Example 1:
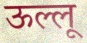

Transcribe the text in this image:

ऊल्लू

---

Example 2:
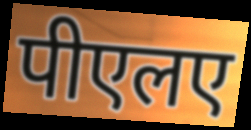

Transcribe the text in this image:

पीएलए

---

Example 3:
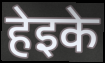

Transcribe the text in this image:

हेइके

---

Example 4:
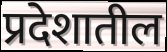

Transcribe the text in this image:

प्रदेशातील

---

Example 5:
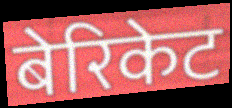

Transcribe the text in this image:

बेरिकेट